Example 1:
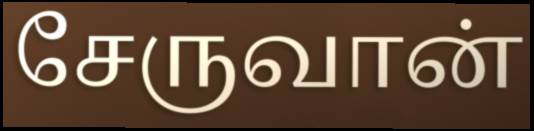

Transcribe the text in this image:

சேருவான்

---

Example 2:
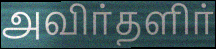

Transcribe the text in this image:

அவிர்தளிர்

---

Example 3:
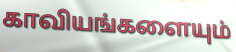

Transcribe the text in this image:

காவியங்களையும்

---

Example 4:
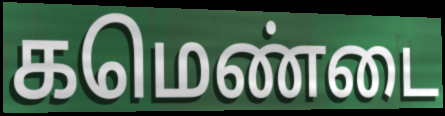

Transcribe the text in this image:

கமெண்டை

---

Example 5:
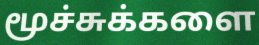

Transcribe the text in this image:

மூச்சுக்களை